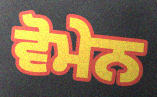
ਵੋਮੇਨ